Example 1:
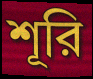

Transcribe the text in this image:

শূরি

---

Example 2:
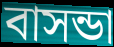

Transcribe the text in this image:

বাসন্ডা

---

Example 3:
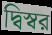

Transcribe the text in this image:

দ্বিস্বর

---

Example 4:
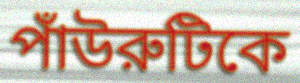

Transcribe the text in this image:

পাঁউরুটিকে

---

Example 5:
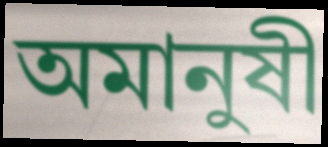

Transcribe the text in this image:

অমানুষী